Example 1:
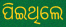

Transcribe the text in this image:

ପିଇଥିଲେ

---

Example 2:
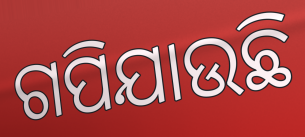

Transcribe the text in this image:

ଗପିଯାଉଛି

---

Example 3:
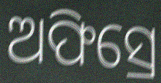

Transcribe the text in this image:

ଅଫିସ୍ରେ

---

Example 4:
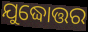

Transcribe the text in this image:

ଯୁଦ୍ଧୋତ୍ତର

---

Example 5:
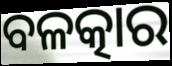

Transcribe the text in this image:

ବଳତ୍କାର